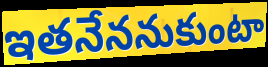
ఇతనేననుకుంటా